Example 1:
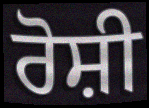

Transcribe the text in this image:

ਰੋਸ਼ੀ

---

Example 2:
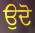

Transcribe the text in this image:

ਉਦੋ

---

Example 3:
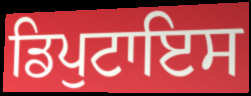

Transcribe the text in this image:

ਡਿਪੁਟਾਇਸ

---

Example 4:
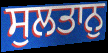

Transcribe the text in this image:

ਸੁਲਤਾਨੁ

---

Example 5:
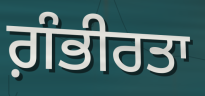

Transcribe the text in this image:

ਗ਼ੰਭੀਰਤਾ